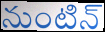
నుంటిన్